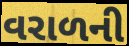
વરાળની